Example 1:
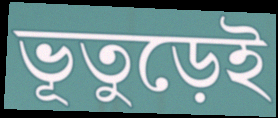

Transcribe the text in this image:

ভূতুড়েই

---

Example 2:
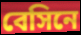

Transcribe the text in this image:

বেসিনে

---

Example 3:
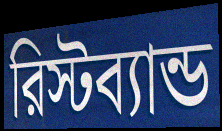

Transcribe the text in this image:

রিস্টব্যান্ড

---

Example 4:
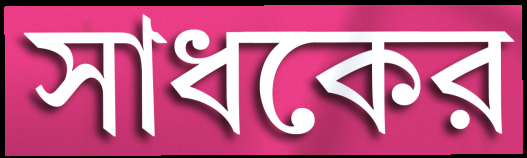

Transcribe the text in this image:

সাধকের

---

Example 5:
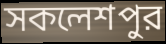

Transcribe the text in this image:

সকলেশপুর